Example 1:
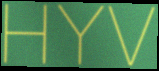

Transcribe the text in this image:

HYV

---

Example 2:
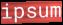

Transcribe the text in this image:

ipsum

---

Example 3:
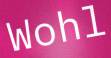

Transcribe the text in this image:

Wohl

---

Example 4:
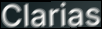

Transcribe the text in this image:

Clarias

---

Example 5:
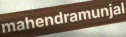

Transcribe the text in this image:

mahendramunjal